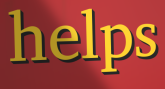
helps